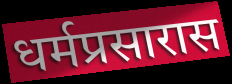
धर्मप्रसारास